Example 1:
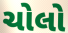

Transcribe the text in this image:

ચોલો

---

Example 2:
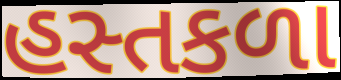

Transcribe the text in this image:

હસ્તકળા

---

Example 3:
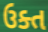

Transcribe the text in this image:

ઉક્ત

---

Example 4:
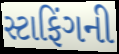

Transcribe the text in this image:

સ્ટાફિંગની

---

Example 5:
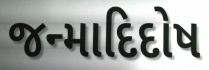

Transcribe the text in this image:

જન્માદિદોષ